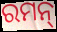
ରମନ୍